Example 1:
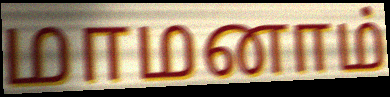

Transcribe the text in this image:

மாமனாம்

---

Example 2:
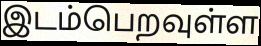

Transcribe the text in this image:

இடம்பெறவுள்ள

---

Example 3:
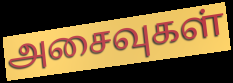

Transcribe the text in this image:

அசைவுகள்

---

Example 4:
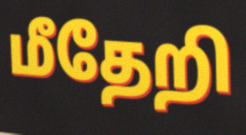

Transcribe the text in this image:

மீதேறி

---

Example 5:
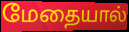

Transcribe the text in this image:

மேதையால்